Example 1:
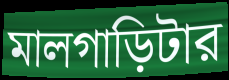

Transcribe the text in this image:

মালগাড়িটার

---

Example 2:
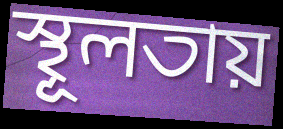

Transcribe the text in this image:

স্থূলতায়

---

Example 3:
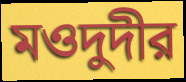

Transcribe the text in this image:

মওদুদীর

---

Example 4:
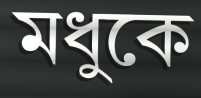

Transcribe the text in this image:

মধুকে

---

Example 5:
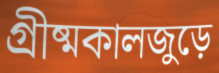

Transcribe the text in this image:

গ্রীষ্মকালজুড়ে